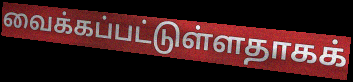
வைக்கப்பட்டுள்ளதாகக்